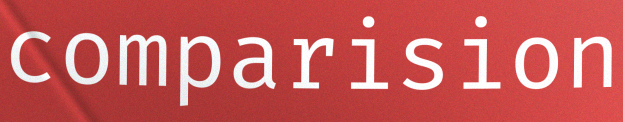
comparision